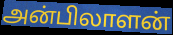
அன்பிலாளன்